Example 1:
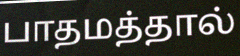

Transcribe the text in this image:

பாதமத்தால்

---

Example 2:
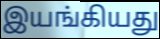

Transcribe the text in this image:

இயங்கியது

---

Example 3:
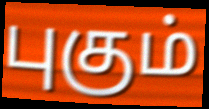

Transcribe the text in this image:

புகும்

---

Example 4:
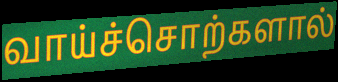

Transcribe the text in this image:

வாய்ச்சொற்களால்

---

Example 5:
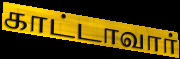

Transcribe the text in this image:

காட்டாவார்